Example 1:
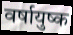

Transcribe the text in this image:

वर्षायुष्क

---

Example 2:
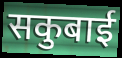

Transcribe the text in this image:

सकुबाई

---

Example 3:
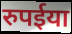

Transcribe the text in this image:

रुपईया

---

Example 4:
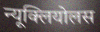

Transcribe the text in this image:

न्यूक्लियोलस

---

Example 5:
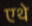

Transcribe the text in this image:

एथे